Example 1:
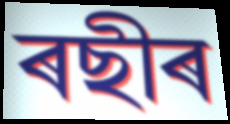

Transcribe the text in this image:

ৰছীৰ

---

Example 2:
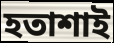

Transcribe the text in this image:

হতাশাই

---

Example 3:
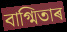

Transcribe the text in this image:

বাগ্মিতাৰ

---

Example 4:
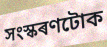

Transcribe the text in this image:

সংস্কৰণটোক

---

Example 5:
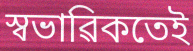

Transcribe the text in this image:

স্বভাৱিকতেই